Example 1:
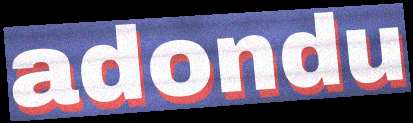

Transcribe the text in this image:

adondu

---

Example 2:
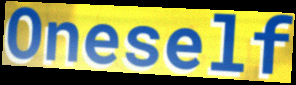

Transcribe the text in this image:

Oneself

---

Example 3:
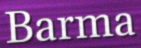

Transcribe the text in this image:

Barma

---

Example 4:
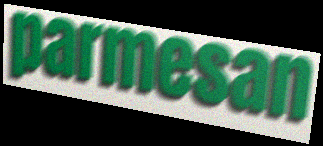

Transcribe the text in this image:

parmesan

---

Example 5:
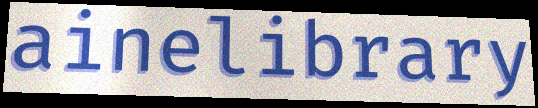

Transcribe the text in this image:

ainelibrary